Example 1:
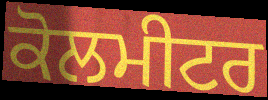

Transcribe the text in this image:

ਕੋਲਮੀਟਰ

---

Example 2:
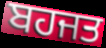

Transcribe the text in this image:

ਬਹਜਤ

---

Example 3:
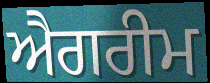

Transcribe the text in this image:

ਐਗਰੀਮ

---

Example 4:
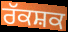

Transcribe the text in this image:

ਰੱਕਸ਼ਕ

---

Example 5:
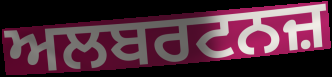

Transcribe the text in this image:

ਅਲਬਰਟਨਜ਼